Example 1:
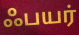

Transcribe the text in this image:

ஃபயர்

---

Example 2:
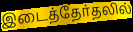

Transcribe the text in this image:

இடைத்தேர்தலில்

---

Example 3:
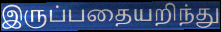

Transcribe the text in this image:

இருப்பதையறிந்து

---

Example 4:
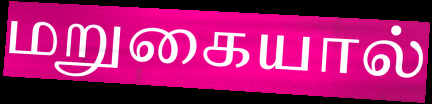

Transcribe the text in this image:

மறுகையால்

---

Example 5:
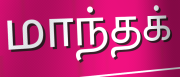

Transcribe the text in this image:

மாந்தக்